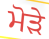
ਮੋੜੇ